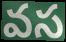
వస